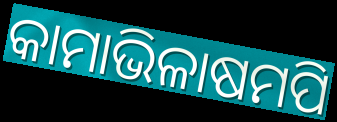
କାମାଭିଳାଷମପି